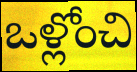
ఒళ్లోంచి